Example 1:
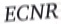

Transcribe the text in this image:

ECNR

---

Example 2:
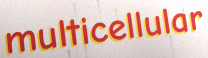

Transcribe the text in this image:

multicellular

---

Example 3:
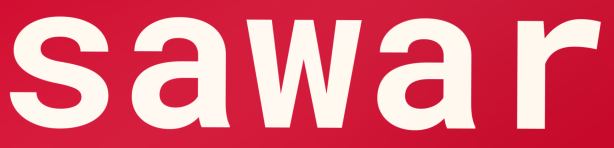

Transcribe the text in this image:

sawar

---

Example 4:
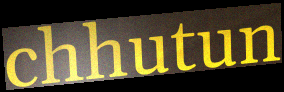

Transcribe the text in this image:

chhutun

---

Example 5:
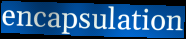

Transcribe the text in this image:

encapsulation